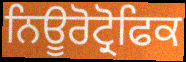
ਨਿਊਰੋਟ੍ਰੋਫਿਕ